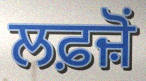
ਲਫ਼ਜ਼ੋਂ